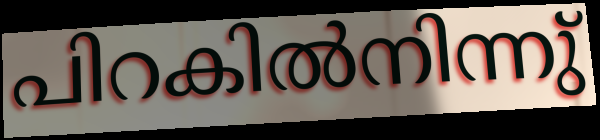
പിറകിൽനിന്നു്